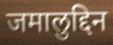
जमालुद्दिन